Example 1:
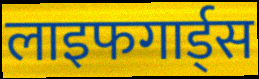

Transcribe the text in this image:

लाइफगार्ड्स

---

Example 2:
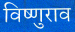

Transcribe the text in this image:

विष्णुराव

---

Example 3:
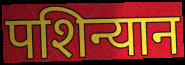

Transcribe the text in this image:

पशिन्यान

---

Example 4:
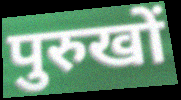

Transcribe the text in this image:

पुरुखों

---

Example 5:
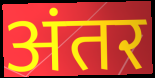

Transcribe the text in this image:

अंतर